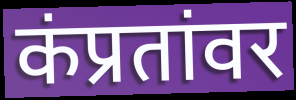
कंप्रतांवर